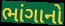
ભાંગાનો